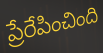
ప్రేరేపించింది